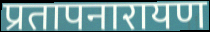
प्रतापनारायण